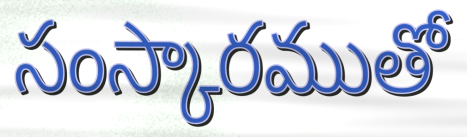
సంస్కారముతో